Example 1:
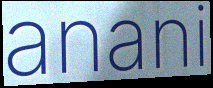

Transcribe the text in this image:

anani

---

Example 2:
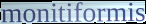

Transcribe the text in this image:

monitiformis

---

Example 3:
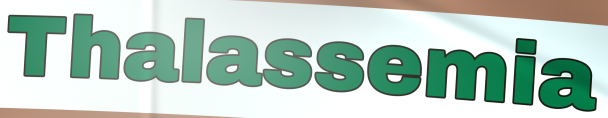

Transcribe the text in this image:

Thalassemia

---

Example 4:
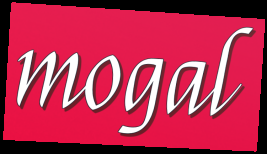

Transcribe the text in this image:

mogal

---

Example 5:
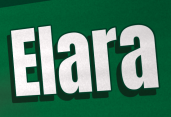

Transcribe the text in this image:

Elara